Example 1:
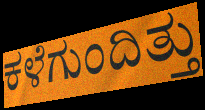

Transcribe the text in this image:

ಕಳೆಗುಂದಿತ್ತು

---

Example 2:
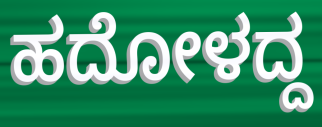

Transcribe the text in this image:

ಹದೋಳದ್ದ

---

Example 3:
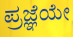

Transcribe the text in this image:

ಪ್ರಜ್ಞೆಯೇ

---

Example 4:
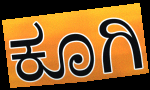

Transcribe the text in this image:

ಕೂಗಿ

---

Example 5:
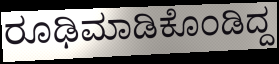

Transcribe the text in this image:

ರೂಢಿಮಾಡಿಕೊಂಡಿದ್ದ